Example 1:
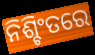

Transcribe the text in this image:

ନିଶ୍ଚିଂତରେ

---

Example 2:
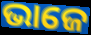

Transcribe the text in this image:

ଭାଜେ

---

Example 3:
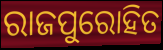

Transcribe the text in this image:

ରାଜପୁରୋହିତ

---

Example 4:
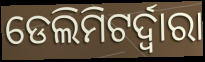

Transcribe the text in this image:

ଡେଲିମିଟର୍ଦ୍ୱାରା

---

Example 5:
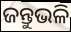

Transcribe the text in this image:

ଜନ୍ତୁଭଳି